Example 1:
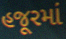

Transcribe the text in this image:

હજૂરમાં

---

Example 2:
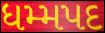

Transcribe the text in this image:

ધમ્મપદ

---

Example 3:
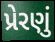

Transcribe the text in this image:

પ્રેરણું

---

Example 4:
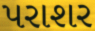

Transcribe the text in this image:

પરાશર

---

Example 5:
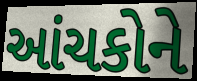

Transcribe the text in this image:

આંચકોને